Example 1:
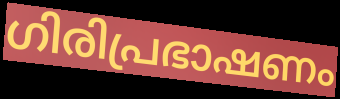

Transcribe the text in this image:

ഗിരിപ്രഭാഷണം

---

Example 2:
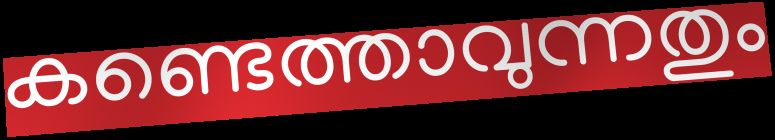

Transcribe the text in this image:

കണ്ടെത്താവുന്നതും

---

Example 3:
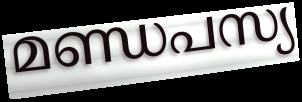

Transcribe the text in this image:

മണ്ഡപസ്യ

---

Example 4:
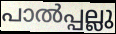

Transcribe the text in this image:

പാൽപ്പല്ലു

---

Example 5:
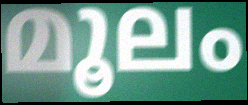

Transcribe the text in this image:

മൂലം